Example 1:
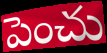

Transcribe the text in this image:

పెంచు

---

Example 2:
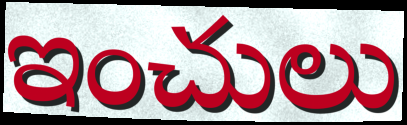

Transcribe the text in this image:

ఇంచులు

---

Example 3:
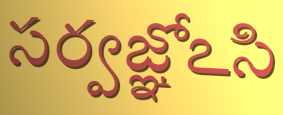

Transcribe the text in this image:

సర్వజ్ఞోఽసి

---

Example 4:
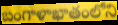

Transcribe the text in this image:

బంగాళాఖాతంలోని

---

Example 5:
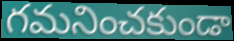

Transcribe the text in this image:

గమనించకుండా